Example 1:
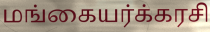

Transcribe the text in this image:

மங்கையர்க்கரசி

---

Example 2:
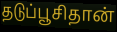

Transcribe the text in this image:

தடுப்பூசிதான்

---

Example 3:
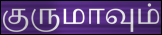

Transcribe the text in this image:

குருமாவும்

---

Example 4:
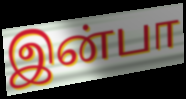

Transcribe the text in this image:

இன்பா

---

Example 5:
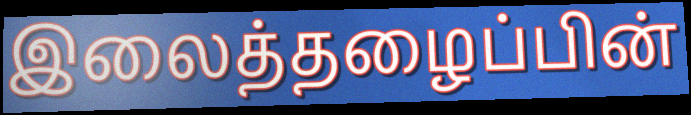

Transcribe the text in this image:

இலைத்தழைப்பின்